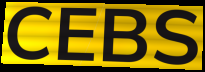
CEBS